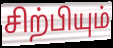
சிற்பியும்